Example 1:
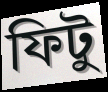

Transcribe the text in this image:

ফিটু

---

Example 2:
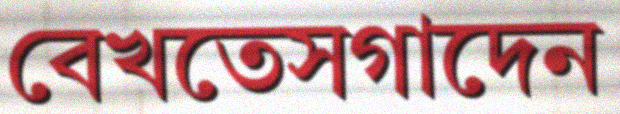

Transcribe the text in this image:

বেখতেসগাদেন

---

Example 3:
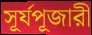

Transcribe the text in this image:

সূর্যপূজারী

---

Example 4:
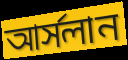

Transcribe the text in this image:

আর্সলান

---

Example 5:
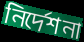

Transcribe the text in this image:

নির্দেশনা